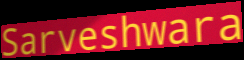
Sarveshwara